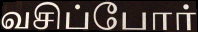
வசிப்போர்